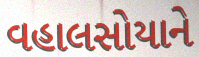
વહાલસોયાને